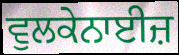
ਵੁਲਕੇਨਾਈਜ਼